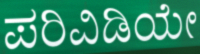
ಪರಿವಿಡಿಯೇ